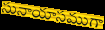
సునాయాసముగా